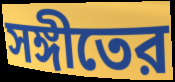
সঙ্গীতের